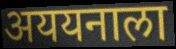
अययनाला